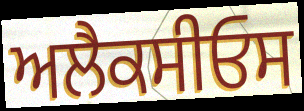
ਅਲੈਕਸੀਓਸ